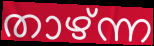
താഴ്ന്ന